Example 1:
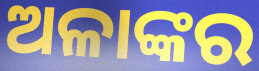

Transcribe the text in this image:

ଅଳାଙ୍କର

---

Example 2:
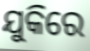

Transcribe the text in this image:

ଯୁକିରେ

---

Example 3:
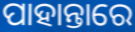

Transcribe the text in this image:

ପାହାନ୍ତାରେ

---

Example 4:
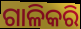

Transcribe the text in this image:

ଗାଳିକରି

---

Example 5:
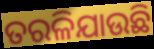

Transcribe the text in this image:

ତରଳିଯାଉଛି